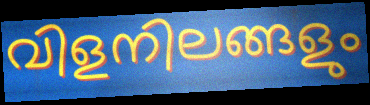
വിളനിലങ്ങളും